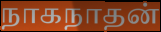
நாகநாதன்